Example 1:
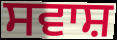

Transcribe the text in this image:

ਸਵਾਸ਼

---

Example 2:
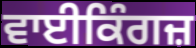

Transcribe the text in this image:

ਵਾਈਕਿੰਗਜ਼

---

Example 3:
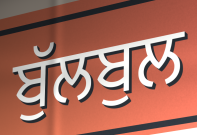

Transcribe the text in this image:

ਬੁੱਲਬੁਲ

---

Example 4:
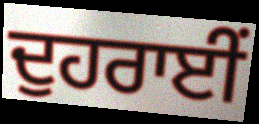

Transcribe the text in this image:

ਦੁਹਰਾਈਂ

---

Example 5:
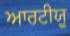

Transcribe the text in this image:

ਆਰਟੀਯੂ